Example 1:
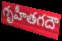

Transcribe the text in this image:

గృహీతగదౌ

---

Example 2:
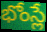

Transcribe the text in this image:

భోంస్లే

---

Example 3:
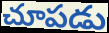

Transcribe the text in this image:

చూపడు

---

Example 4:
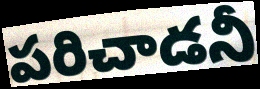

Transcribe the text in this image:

పరిచాడనీ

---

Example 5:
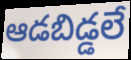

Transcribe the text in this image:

ఆడబిడ్డలే